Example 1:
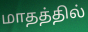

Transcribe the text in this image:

மாதத்தில்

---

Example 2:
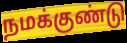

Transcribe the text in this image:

நமக்குண்டு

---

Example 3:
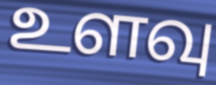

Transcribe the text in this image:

உளவு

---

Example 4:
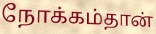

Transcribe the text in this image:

நோக்கம்தான்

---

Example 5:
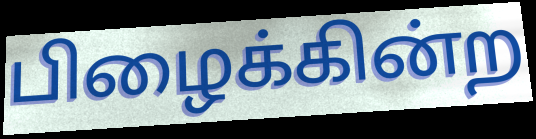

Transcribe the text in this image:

பிழைக்கின்ற